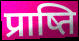
प्राष्ति